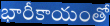
భారీకాయంతో